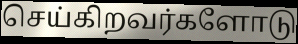
செய்கிறவர்களோடு